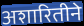
अशारितीने